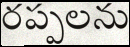
రప్పలను